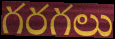
గరగలు